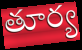
తూర్య